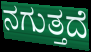
ನಗುತ್ತದೆ